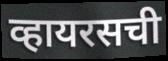
व्हायरसची